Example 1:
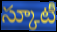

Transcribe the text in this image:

స్కూటీ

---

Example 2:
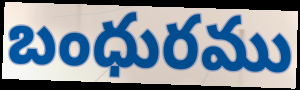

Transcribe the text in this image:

బంధురము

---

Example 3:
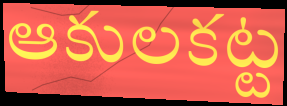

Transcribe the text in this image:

ఆకులకట్ట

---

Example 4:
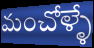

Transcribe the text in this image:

మంచోళ్ళే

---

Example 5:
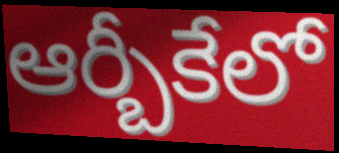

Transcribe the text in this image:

ఆర్బీకేలో